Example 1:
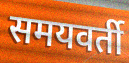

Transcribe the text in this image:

समयवर्ती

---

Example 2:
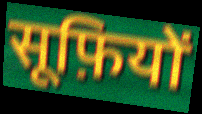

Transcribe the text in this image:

सूफ़ियों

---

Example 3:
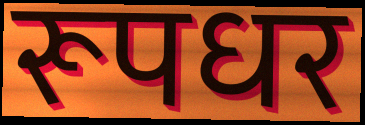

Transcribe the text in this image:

रूपधर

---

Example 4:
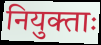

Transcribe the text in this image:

नियुक्ताः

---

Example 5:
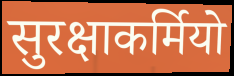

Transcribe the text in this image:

सुरक्षाकर्मियो